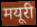
मयूरी